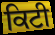
ਕਿਟੀ